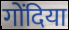
गोंदिया